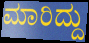
ಮಾರಿದ್ದು